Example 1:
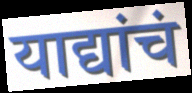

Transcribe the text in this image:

याद्यांचं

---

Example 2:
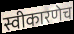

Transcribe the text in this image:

स्वीकारणेच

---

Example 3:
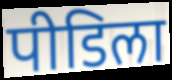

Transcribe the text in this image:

पीडिला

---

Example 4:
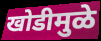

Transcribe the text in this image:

खोडीमुळे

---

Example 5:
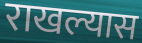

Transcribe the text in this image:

राखल्यास